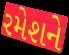
રમેશને